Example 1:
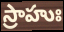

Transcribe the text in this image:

స్రాహుః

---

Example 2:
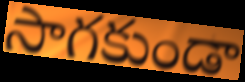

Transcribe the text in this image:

సాగకుండా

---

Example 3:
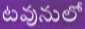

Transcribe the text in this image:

టవునులో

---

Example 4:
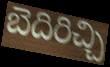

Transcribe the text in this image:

బెదిరిచ్చి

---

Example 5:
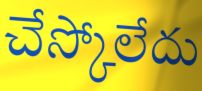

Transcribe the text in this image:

చేస్కోలేదు